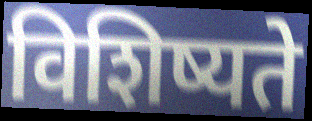
विशिष्यते